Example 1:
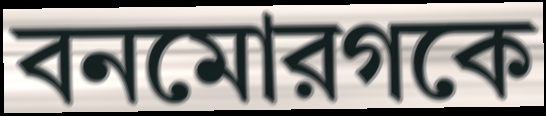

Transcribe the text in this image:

বনমোরগকে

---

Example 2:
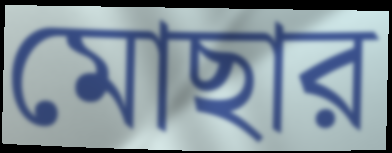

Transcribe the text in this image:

মোছার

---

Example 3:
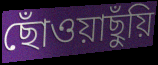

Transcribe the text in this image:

ছোঁওয়াছুঁয়ি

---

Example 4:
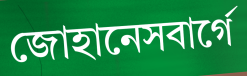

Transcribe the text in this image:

জোহানেসবার্গে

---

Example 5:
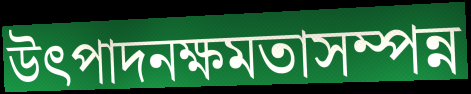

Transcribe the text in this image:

উৎপাদনক্ষমতাসম্পন্ন